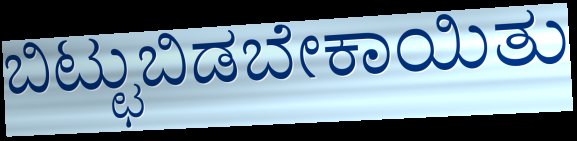
ಬಿಟ್ಟುಬಿಡಬೇಕಾಯಿತು